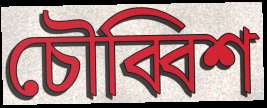
চৌব্বিশ